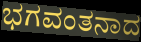
ಭಗವಂತನಾದ